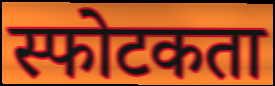
स्फोटकता